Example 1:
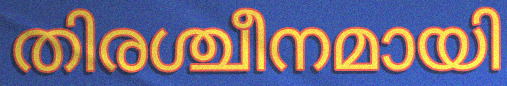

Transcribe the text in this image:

തിരശ്ചീനമായി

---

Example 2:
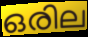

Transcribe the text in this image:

ഒരില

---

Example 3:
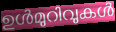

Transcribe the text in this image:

ഉൾമുറിവുകൾ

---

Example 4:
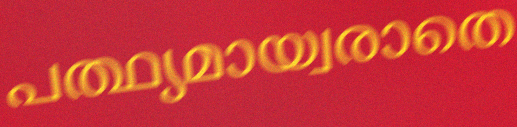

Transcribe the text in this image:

പത്ഥ്യമായ്വരാതെ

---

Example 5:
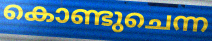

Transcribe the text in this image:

കൊണ്ടുചെന്ന